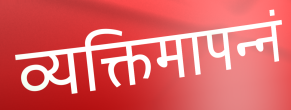
व्यक्तिमापन्नं